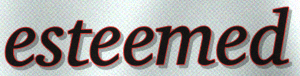
esteemed